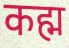
कह्म